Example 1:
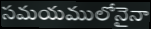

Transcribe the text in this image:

సమయములోనైనా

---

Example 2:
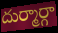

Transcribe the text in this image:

దుర్మార్గా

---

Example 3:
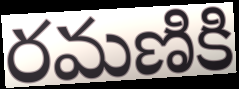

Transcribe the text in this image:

రమణికి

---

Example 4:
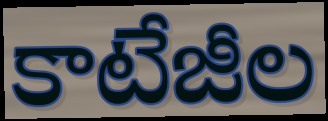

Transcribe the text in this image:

కాటేజీల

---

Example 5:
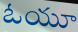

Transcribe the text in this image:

ఓయూ